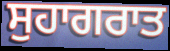
ਸੁਹਾਗਰਾਤ